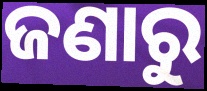
ଜଣାରୁ